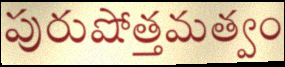
పురుషోత్తమత్వం